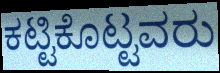
ಕಟ್ಟಿಕೊಟ್ಟವರು